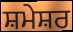
ਸ਼ਮੇਸ਼ਰ